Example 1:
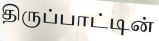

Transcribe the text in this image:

திருப்பாட்டின்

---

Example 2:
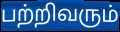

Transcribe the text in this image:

பற்றிவரும்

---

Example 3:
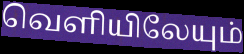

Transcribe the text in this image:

வெளியிலேயும்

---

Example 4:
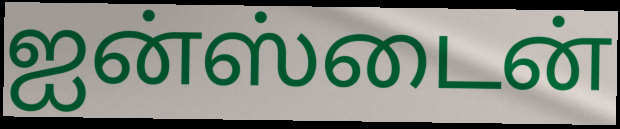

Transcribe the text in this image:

ஐன்ஸ்டைன்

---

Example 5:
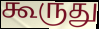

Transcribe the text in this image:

கூருது